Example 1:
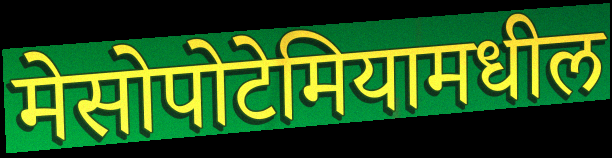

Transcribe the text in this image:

मेसोपोटेमियामधील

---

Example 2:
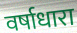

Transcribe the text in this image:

वर्षाधारा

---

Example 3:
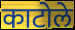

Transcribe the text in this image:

काटोले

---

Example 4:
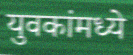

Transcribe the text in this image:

युवकांमध्ये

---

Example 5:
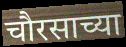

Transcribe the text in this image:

चौरसाच्या